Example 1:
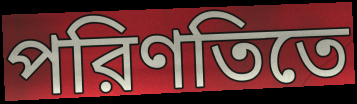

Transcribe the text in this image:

পরিণতিতে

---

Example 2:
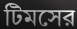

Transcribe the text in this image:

টিমসের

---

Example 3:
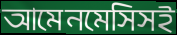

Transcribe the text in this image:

আমেনমেসিসই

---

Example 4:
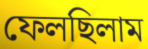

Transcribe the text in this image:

ফেলছিলাম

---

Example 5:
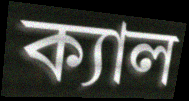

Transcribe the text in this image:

ক্যাল